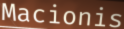
Macionis